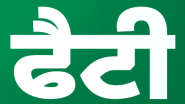
ਫੈਟੀ